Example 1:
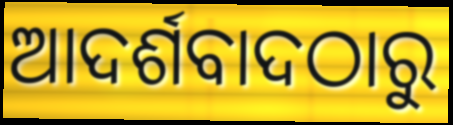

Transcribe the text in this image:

ଆଦର୍ଶବାଦଠାରୁ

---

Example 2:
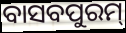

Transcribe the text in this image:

ବାସବପୁରମ୍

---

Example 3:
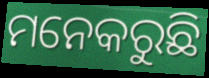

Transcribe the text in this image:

ମନେକରୁଛି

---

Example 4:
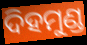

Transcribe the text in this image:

ଦିହମୁଣ୍ଡ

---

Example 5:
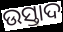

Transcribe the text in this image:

ଉସ୍ତାଦ